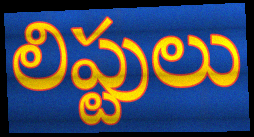
లిప్టులు